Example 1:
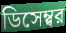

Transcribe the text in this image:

ডিসেম্ব্বর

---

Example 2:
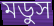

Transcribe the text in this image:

মডুস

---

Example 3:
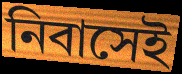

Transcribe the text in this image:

নিবাসেই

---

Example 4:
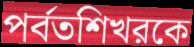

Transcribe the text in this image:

পর্বতশিখরকে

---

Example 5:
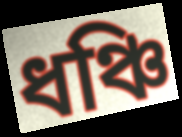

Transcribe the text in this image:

ধঞ্চি